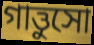
গাত্তুসো